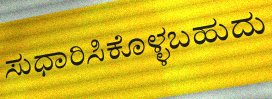
ಸುಧಾರಿಸಿಕೊಳ್ಳಬಹುದು